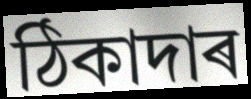
ঠিকাদাৰ